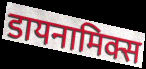
डायनामिक्स